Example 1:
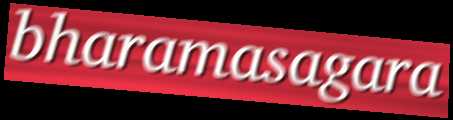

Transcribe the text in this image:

bharamasagara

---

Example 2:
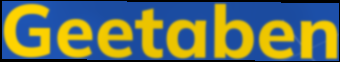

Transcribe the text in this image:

Geetaben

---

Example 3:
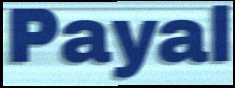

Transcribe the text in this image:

Payal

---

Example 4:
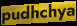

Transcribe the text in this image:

pudhchya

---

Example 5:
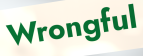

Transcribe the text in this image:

Wrongful